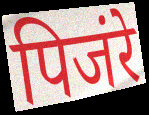
पिजंरे